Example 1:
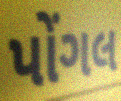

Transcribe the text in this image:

પોંગલ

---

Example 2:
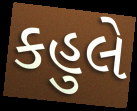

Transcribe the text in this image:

કહુલે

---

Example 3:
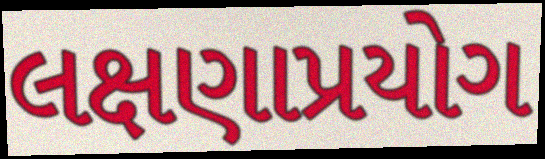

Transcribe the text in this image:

લક્ષણાપ્રયોગ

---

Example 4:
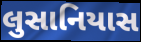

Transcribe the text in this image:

લુસાનિયાસ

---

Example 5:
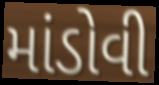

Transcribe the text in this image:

માંડોવી